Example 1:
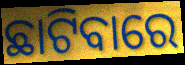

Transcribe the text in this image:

ଛାଟିବାରେ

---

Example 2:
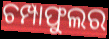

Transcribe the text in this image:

ଚମ୍ପାଫୁଲର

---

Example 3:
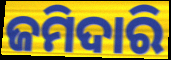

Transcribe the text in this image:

ଜମିଦାରି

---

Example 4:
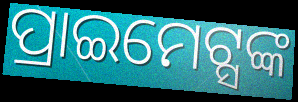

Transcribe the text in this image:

ପ୍ରାଇମେଟ୍ସଙ୍କ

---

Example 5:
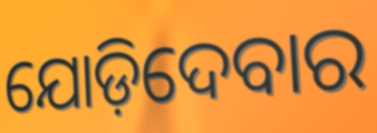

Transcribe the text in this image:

ଯୋଡ଼ିଦେବାର